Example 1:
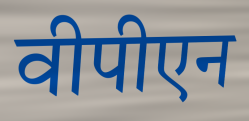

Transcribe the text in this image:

वीपीएन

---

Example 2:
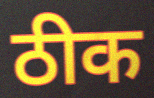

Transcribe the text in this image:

ठीक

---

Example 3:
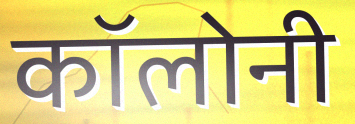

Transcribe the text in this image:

कॉलोनी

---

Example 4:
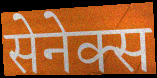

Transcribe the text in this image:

सेनेक्स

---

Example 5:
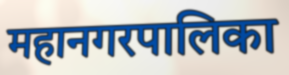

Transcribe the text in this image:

महानगरपालिका